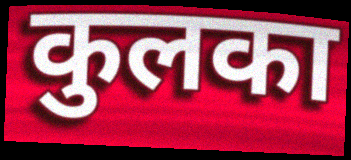
कुलका